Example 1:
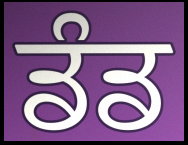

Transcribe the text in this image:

ਡੰਡ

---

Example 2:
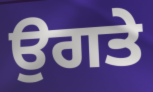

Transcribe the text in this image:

ਉਗਤੇ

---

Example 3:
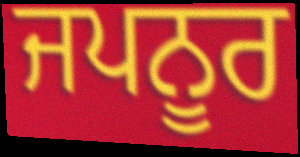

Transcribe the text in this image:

ਜਪਨੂਰ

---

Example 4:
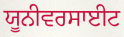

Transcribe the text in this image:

ਯੂਨੀਵਰਸਾਈਟ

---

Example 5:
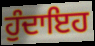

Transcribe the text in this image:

ਹੁੰਦਾਇਹ